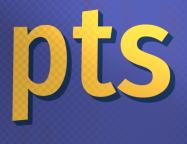
pts